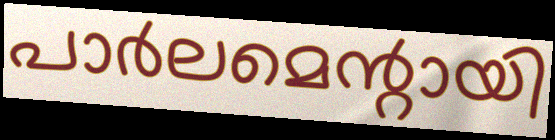
പാർലമെന്റായി